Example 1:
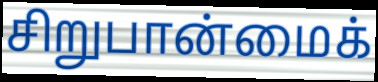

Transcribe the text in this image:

சிறுபான்மைக்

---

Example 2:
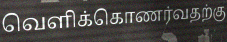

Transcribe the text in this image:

வெளிக்கொணர்வதற்கு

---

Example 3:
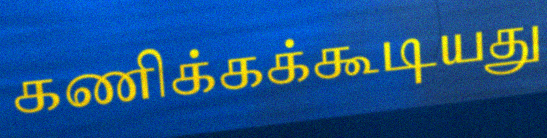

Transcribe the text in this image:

கணிக்கக்கூடியது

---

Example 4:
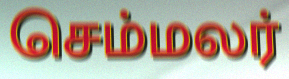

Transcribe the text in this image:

செம்மலர்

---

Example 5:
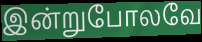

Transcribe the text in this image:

இன்றுபோலவே